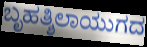
ಬೃಹತ್ಶಿಲಾಯುಗದ